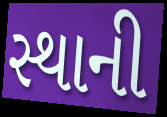
સ્થાની